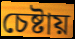
চেষ্টায়